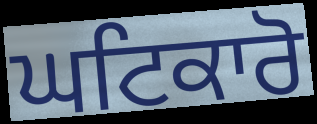
ਘਟਿਕਾਰੋ